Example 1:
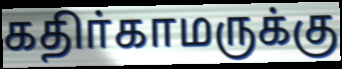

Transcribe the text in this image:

கதிர்காமருக்கு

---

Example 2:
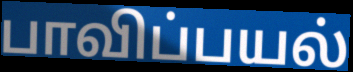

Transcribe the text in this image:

பாவிப்பயல்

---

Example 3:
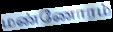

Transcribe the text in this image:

மண்ணோரம்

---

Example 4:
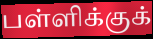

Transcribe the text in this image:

பள்ளிக்குக்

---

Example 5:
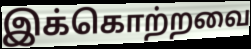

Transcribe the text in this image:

இக்கொற்றவை